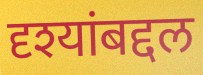
दृश्यांबद्दल